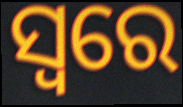
ସ୍ୱରେ